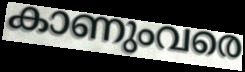
കാണുംവരെ